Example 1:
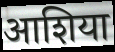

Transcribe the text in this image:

आशिया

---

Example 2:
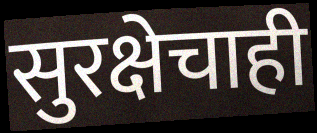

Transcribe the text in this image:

सुरक्षेचाही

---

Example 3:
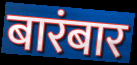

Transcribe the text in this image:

बारंबार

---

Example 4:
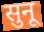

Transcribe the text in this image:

सुनू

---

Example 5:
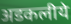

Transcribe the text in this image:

अडकलीये